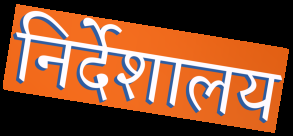
निर्देशालय